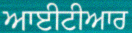
ਆਈਟੀਆਰ